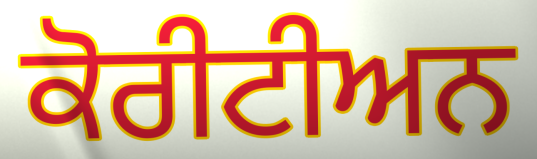
ਕੋਰੀਟੀਅਨ